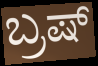
ಬ್ರಷ್